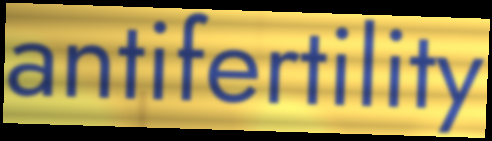
antifertility